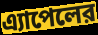
এ্যাপেলের